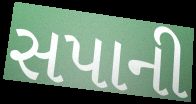
સપાની